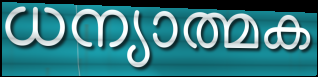
ധന്യാത്മക